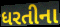
ધરતીના